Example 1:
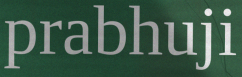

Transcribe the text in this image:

prabhuji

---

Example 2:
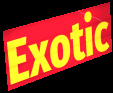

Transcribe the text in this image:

Exotic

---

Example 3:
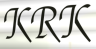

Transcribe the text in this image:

KRK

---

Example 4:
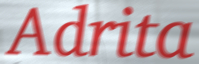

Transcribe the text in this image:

Adrita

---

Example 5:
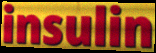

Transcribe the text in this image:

insulin